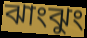
ঝাংঝুং